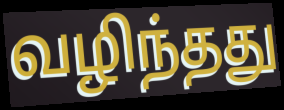
வழிந்தது